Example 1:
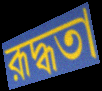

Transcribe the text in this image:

রূদ্ধতা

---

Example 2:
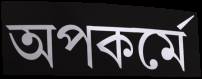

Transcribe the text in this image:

অপকর্মে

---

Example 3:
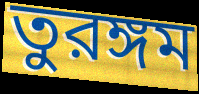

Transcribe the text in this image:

তুরঙ্গম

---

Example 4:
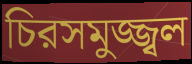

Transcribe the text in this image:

চিরসমুজ্জ্বল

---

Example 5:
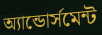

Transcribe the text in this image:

অ্যান্ডোর্সমেন্ট